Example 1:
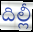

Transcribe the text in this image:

దిల్లీ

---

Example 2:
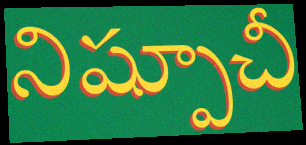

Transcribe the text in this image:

నిష్పూచీ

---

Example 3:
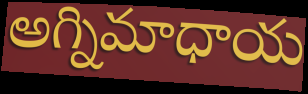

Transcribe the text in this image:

అగ్నిమాధాయ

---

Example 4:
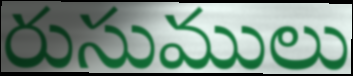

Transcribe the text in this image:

రుసుములు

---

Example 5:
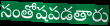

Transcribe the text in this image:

సంతోషపడతారు